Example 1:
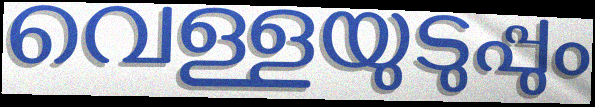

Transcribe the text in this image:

വെള്ളയുടുപ്പും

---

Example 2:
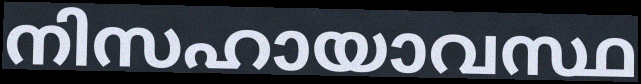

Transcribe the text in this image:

നിസഹായാവസ്ഥ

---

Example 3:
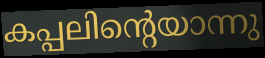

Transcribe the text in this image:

കപ്പലിന്റെയാന്നു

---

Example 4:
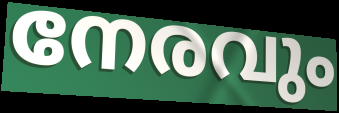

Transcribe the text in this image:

നേരവും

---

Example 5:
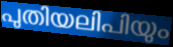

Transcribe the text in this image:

പുതിയലിപിയും